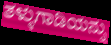
ತಳ್ಳುಗಾಡಿಯನ್ನು